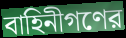
বাহিনীগণের